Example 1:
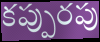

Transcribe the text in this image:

కప్పురపు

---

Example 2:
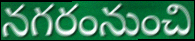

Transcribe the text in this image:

నగరంనుంచి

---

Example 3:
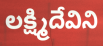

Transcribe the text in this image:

లక్ష్మిదేవిని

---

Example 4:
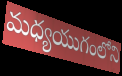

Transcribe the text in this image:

మధ్యయుగంలోని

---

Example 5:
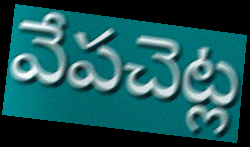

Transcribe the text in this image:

వేపచెట్ల